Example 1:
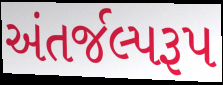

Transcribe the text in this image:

અંતર્જલ્પરૂપ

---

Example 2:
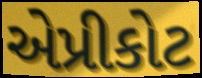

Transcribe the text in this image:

એપ્રીકોટ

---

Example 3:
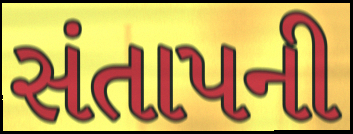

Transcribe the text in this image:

સંતાપની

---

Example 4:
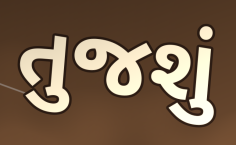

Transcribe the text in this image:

તુજશું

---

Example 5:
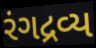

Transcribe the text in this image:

રંગદ્રવ્ય